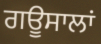
ਗਊਸਾਲਾਂ